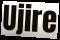
Ujire